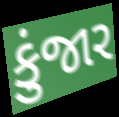
કુંજાર